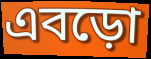
এবড়ো